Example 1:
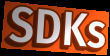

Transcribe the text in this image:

SDKs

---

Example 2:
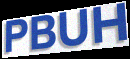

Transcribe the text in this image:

PBUH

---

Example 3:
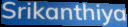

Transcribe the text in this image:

Srikanthiya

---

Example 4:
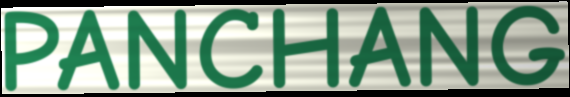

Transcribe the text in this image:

PANCHANG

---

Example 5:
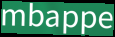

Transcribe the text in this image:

mbappe